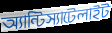
অ্যান্টিস্যাটেলাইট